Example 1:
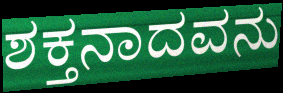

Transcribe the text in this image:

ಶಕ್ತನಾದವನು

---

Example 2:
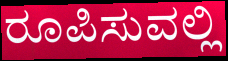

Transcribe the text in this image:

ರೂಪಿಸುವಲ್ಲಿ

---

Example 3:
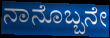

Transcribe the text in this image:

ನಾನೊಬ್ಬನೇ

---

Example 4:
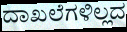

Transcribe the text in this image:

ದಾಖಲೆಗಳಿಲ್ಲದ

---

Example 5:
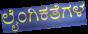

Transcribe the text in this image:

ಲೈಂಗಿಕತೆಗಳ